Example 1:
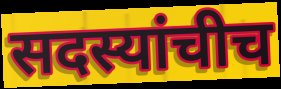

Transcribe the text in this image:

सदस्यांचीच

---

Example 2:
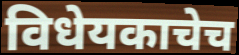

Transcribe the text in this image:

विधेयकाचेच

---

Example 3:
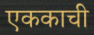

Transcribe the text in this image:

एककाची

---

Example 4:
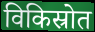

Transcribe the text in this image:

विकिस्रोत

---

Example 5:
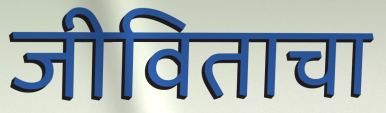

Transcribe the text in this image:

जीविताचा